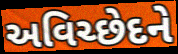
અવિચ્છેદને